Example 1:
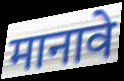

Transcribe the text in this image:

मानावे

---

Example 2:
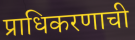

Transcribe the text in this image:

प्राधिकरणाची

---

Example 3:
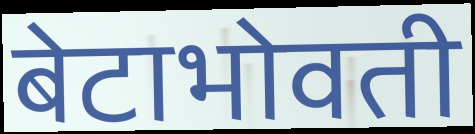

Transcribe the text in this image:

बेटाभोवती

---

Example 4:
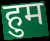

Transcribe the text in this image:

हुम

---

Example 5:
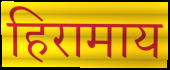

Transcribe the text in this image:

हिरामाय